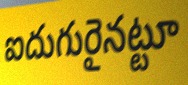
ఐదుగురైనట్టూ